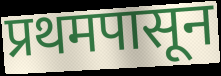
प्रथमपासून